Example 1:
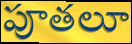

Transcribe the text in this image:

పూతలూ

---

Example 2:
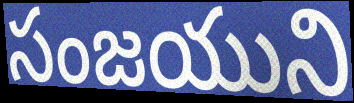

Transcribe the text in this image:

సంజయుని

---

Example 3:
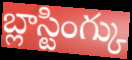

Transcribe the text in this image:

బ్లాస్టింగ్కు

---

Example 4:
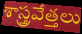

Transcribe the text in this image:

శాస్త్రవేత్తలు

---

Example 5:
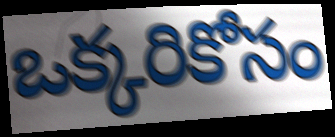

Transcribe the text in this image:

ఒక్కరికోసం